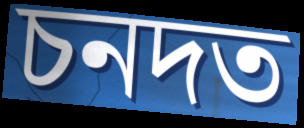
চনদত